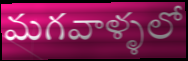
మగవాళ్ళలో